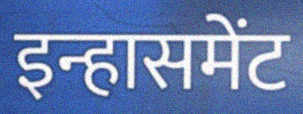
इन्हासमेंट